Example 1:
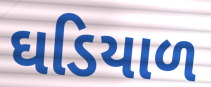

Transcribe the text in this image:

ઘડિયાળ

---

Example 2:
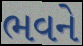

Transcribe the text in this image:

ભવને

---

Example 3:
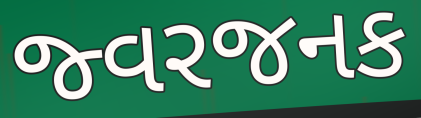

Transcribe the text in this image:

જ્વરજનક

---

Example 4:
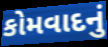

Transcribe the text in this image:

કોમવાદનું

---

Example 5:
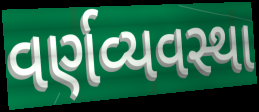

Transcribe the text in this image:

વર્ણવ્યવસ્થા